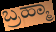
ಬ್ರಹ್ಮಾ